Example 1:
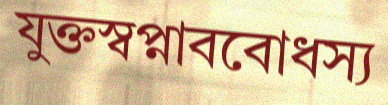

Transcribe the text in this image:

যুক্তস্বপ্নাববোধস্য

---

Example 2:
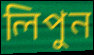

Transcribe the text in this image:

লিপুন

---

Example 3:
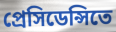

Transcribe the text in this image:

প্রেসিডেন্সিতে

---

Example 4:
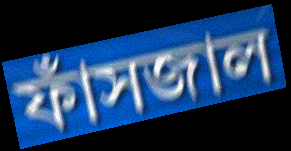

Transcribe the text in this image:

ফাঁসজাল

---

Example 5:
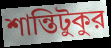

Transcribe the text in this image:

শান্তিটুকুর